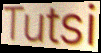
Tutsi